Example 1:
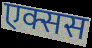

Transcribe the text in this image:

एक्सस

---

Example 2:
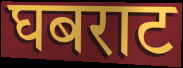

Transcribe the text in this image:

घबराट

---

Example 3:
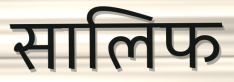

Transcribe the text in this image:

सालिफ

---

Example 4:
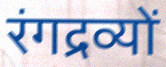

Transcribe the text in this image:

रंगद्रव्यों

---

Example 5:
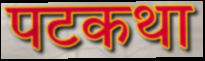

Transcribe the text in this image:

पटकथा